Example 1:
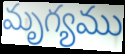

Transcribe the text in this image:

మృగ్యము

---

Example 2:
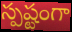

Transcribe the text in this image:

స్పష్టంగా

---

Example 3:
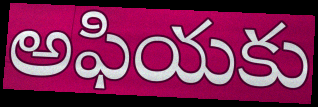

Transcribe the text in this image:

అఫియకు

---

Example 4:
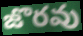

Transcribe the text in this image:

జొరవు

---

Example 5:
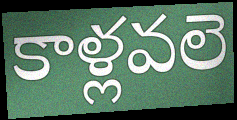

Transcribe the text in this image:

కాళ్లవలె